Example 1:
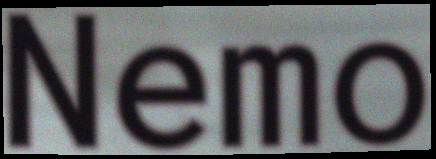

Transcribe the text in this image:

Nemo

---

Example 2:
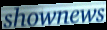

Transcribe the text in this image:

shownews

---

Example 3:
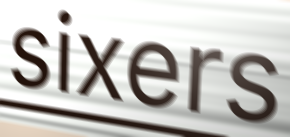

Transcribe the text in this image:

sixers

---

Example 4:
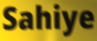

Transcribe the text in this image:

Sahiye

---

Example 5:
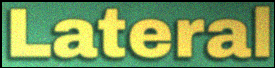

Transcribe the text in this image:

Lateral